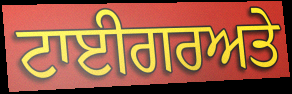
ਟਾਈਗਰਅਤੇ